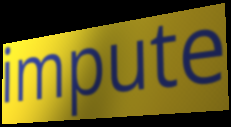
impute